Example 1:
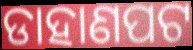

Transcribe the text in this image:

ଡାହାଣପଟ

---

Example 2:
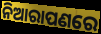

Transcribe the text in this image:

ନିଆରାପଣରେ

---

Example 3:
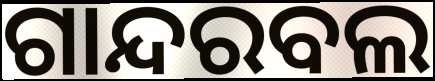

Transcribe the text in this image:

ଗାନ୍ଦରବଲ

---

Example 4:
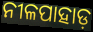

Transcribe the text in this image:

ନୀଳପାହାଡ଼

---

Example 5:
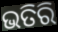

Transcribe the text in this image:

ଭତିରି